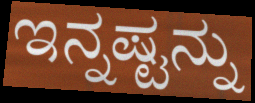
ಇನ್ನಷ್ಟನ್ನು